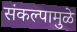
संकल्पामुळे